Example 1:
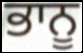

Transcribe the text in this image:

ਭਾਨੂ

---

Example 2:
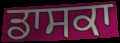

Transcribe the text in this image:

ਡਾਸਕਾ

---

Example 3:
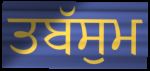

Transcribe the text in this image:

ਤਬੱਸੁਮ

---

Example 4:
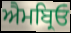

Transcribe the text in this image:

ਐਮਬ੍ਰਿਓ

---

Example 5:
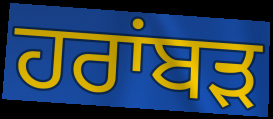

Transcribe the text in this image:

ਹਰਾਂਬੜ